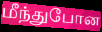
மீந்துபோன